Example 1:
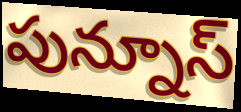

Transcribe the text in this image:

పున్నూస్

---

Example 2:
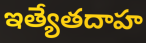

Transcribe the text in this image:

ఇత్యేతదాహ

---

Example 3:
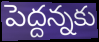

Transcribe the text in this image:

పెద్దన్నకు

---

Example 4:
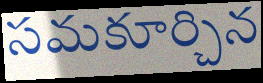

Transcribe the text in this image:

సమకూర్చిన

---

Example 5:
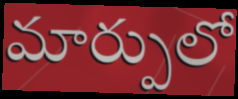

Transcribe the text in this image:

మార్పులో